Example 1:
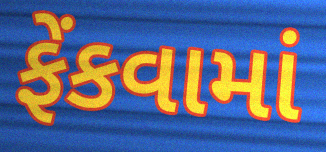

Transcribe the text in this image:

ફેંકવામાં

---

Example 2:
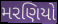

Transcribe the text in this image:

મરણિયો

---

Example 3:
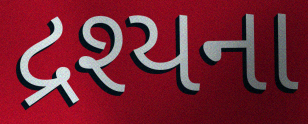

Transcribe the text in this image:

દ્રશ્યના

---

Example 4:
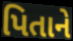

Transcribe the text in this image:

પિતાને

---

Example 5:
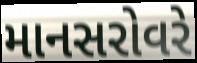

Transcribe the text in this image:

માનસરોવરે